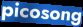
picosong